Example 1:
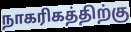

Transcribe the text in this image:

நாகரிகத்திற்கு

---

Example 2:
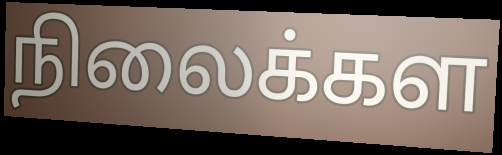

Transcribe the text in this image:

நிலைக்கள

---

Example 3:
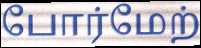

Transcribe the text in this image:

போர்மேற்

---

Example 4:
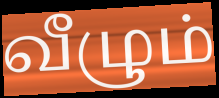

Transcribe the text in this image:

வீழும்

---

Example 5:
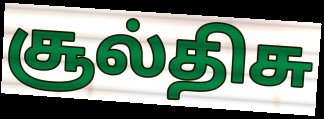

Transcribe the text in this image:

சூல்திசு